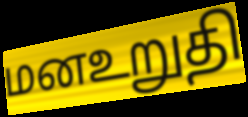
மனஉறுதி